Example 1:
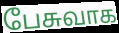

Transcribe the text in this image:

பேசுவாக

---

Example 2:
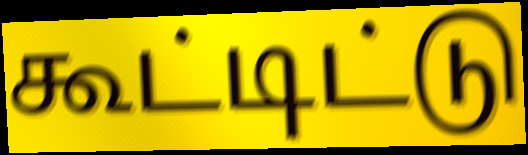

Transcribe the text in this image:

கூட்டிட்டு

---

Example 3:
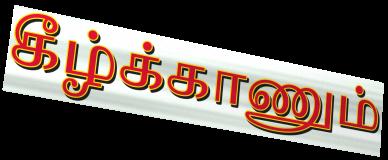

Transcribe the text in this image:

கீழ்க்காணும்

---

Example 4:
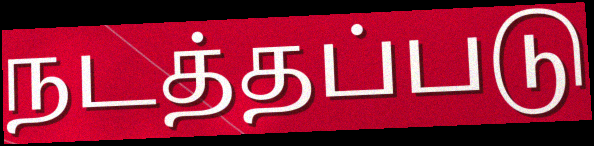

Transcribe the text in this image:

நடத்தப்படு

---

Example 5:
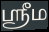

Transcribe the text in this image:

ஶ்ரீம